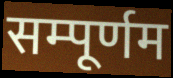
सम्पूर्णम